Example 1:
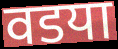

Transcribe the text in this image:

वडया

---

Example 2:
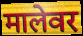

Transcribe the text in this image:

मालेवर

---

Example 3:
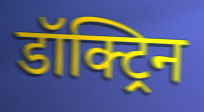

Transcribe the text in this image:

डॉक्ट्रिन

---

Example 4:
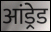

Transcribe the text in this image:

आंड्रेड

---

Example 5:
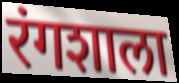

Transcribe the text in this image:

रंगशाला